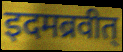
इदमब्रवीत्